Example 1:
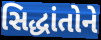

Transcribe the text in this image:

સિદ્ધાંતોને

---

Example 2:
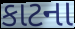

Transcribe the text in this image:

કાટના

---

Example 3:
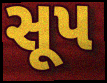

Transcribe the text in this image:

સૂપ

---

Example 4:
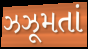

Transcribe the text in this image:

ઝઝૂમતાં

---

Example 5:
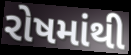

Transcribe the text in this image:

રોષમાંથી